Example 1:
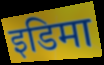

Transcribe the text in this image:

इडिमा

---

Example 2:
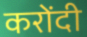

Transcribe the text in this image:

करोंदी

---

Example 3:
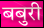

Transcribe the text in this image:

बबुरी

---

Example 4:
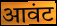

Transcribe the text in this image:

आवंट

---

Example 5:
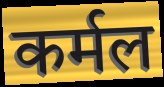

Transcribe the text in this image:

कर्मल